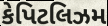
કેપિટલિઝમ